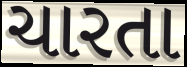
ચારતા